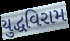
યુદ્ધવિરામ